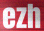
ezh